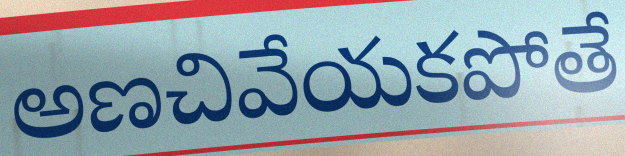
అణచివేయకపోతే